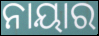
ନାୟାର